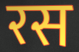
रस